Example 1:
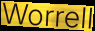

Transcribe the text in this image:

Worrell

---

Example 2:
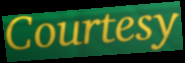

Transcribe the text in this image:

Courtesy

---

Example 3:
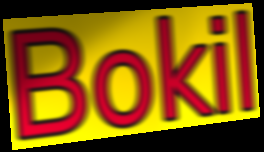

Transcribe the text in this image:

Bokil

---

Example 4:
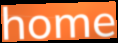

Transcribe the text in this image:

home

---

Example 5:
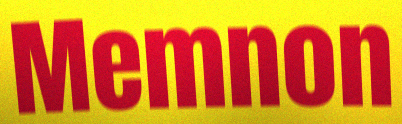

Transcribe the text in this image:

Memnon